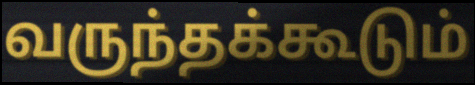
வருந்தக்கூடும்